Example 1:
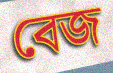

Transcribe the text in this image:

বেজ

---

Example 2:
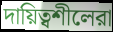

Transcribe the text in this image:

দায়িত্বশীলেরা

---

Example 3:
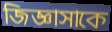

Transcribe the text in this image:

জিজ্ঞাসাকে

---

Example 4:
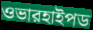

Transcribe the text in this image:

ওভারহাইপড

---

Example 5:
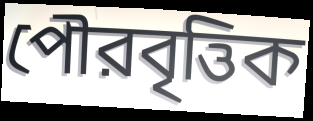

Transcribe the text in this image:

পৌরবৃত্তিক